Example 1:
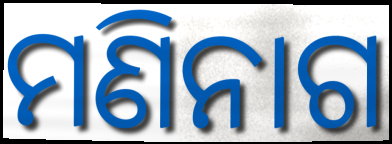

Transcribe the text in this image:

ମଣିନାଗ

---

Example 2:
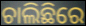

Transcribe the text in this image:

ଚାଲିଛିରେ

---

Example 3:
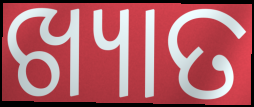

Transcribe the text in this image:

ଖ୍ୟାତ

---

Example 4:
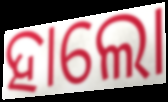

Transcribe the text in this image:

ହାଲୋ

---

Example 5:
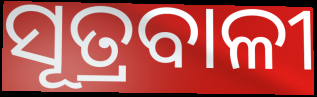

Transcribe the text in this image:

ସୂତ୍ରବାଳୀ